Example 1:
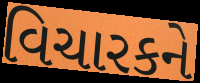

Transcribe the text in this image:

વિચારકને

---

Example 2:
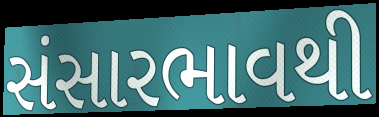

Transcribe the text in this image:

સંસારભાવથી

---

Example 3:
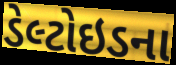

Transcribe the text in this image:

ડેલ્ટોઇડના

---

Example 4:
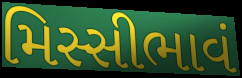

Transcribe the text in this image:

મિસ્સીભાવં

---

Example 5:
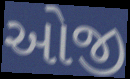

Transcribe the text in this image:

ઓજી